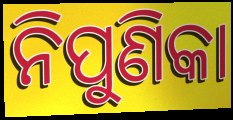
ନିପୁଣିକା